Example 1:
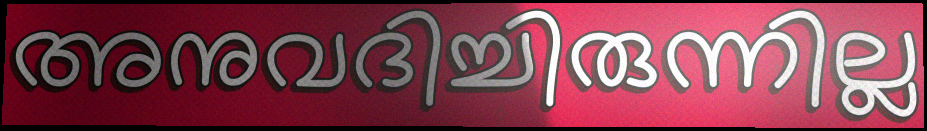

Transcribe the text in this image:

അനുവദിച്ചിരുന്നില്ല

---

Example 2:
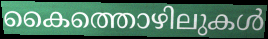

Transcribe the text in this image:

കൈത്തൊഴിലുകൾ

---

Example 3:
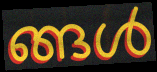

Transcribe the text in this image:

ങ്ങൾ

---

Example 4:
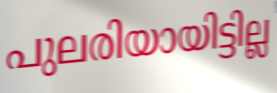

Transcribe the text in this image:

പുലരിയായിട്ടില്ല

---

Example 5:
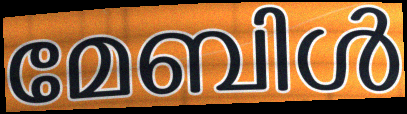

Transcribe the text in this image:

മേബിൾ